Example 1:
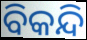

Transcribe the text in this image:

ବିକନ୍ଦି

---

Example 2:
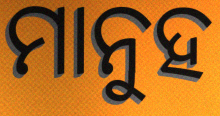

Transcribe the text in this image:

ମାନୁହ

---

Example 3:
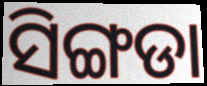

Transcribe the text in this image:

ସିଙ୍ଗଡା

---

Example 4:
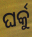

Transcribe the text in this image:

ଘର୍କୁ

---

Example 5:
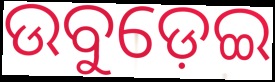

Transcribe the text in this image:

ଉବୁଡ଼େଇ